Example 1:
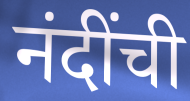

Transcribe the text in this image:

नंदींची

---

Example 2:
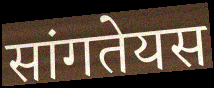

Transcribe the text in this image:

सांगतेयस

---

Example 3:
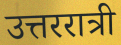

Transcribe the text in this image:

उत्तररात्री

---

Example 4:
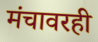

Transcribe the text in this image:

मंचावरही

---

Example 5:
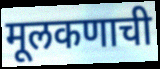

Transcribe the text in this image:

मूलकणाची